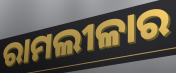
ରାମଲୀଳାର